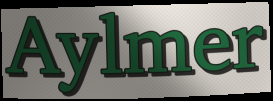
Aylmer